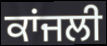
ਕਾਂਜਲੀ